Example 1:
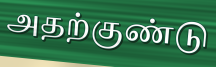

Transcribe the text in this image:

அதற்குண்டு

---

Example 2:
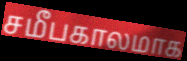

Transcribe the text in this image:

சமீபகாலமாக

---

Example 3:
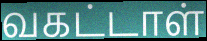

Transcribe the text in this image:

வகட்டாள்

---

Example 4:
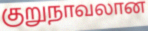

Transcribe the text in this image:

குறுநாவலான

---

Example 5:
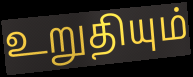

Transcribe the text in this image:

உறுதியும்